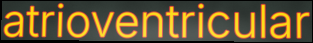
atrioventricular